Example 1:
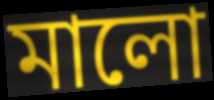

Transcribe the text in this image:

মালো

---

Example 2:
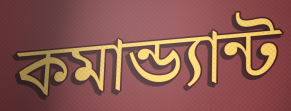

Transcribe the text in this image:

কমান্ড্যান্ট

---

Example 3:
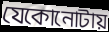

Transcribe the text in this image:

যেকোনোটায়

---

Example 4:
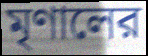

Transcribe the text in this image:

মৃণালের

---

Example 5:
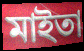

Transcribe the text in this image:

মাইতা